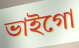
ভাইগো